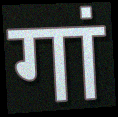
गां